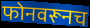
फोनवरूनच